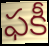
ఫకీ